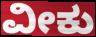
ವೀಕು